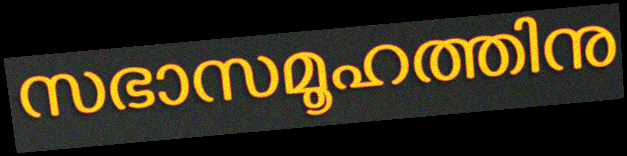
സഭാസമൂഹത്തിനു